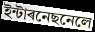
ইন্টাৰনেছনেলে